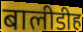
बालीडीह